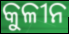
କୁଳୀନ